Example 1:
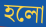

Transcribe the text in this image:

হলো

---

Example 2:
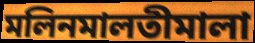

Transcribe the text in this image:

মলিনমালতীমালা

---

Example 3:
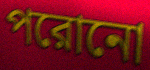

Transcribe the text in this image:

পরোনো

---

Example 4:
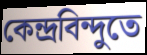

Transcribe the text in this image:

কেন্দ্রবিন্দুতে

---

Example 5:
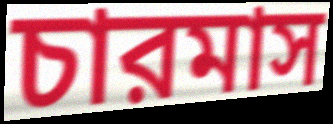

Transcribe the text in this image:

চারমাস